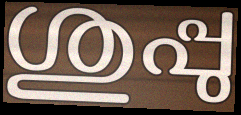
ശുപ്പു